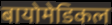
बायोमेडिकल